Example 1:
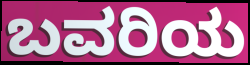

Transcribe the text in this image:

ಬವರಿಯ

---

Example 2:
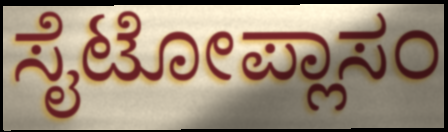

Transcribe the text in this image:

ಸೈಟೋಪ್ಲಾಸಂ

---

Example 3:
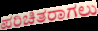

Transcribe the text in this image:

ಪರಿಚಿತರಾಗಲು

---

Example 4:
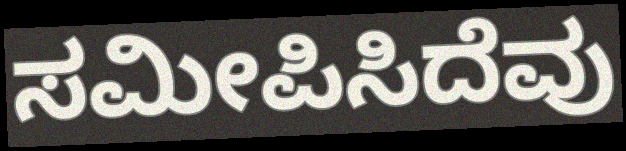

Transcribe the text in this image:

ಸಮೀಪಿಸಿದೆವು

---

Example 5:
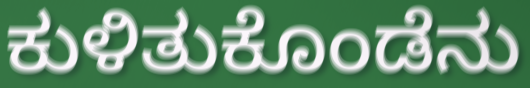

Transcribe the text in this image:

ಕುಳಿತುಕೊಂಡೆನು